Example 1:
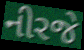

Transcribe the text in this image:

નીરજે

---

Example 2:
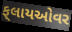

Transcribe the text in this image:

ફ્‌લાયઓવર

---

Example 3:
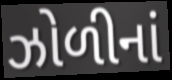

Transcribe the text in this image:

ઝોળીનાં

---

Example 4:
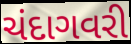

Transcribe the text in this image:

ચંદાગવરી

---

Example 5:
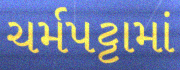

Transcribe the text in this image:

ચર્મપટ્ટામાં